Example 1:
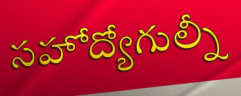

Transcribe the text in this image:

సహోద్యోగుల్నీ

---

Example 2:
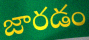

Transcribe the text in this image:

జారడం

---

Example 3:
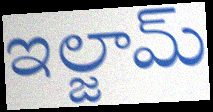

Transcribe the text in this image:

ఇల్జామ్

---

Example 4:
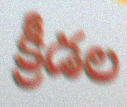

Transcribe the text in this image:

క్రీడల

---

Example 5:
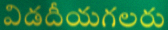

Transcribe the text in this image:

విడదీయగలరు